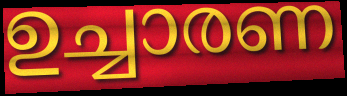
ഉച്ചാരണ